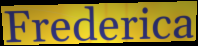
Frederica